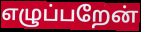
எழுப்பறேன்